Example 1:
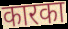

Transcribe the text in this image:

कारका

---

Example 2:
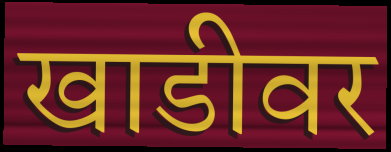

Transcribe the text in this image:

खाडीवर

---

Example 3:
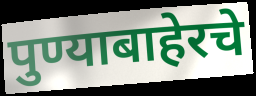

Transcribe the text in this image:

पुण्याबाहेरचे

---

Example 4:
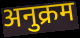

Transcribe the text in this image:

अनुक्रम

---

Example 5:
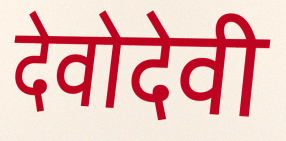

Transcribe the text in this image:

देवोदेवी